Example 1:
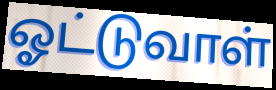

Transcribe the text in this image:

ஓட்டுவாள்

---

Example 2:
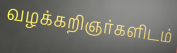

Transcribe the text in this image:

வழக்கறிஞர்களிடம்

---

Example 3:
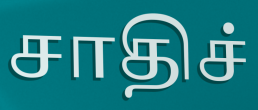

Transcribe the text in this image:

சாதிச்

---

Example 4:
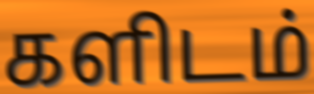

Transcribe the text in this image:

களிடம்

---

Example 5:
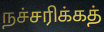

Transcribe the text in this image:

நச்சரிக்கத்